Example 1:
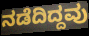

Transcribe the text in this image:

ನಡೆದಿದ್ದವು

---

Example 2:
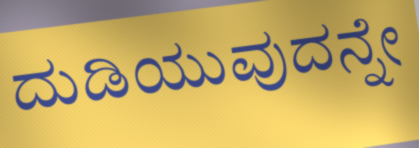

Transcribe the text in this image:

ದುಡಿಯುವುದನ್ನೇ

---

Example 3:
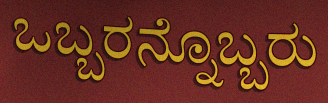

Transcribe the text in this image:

ಒಬ್ಬರನ್ನೊಬ್ಬರು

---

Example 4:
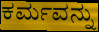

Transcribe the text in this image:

ಕರ್ಮವನ್ನು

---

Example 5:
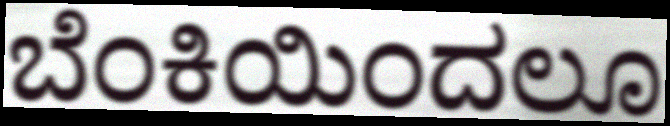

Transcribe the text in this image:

ಬೆಂಕಿಯಿಂದಲೂ